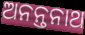
ଅନନ୍ତନାଥ